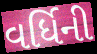
વર્ધિની